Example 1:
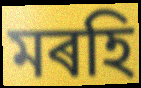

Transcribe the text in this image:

মৰহি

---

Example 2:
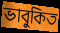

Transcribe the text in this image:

ভাবুকিত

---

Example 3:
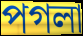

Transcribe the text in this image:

পগলা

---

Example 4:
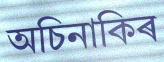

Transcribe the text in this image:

অচিনাকিৰ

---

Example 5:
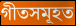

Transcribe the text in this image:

গীতসমূহত